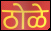
ठोळे